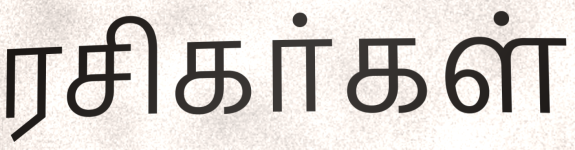
ரசிகர்கள்